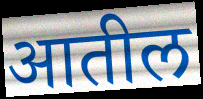
आतील